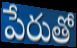
పేరుతో